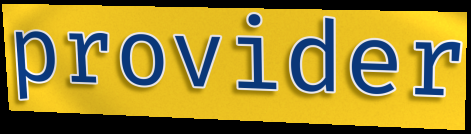
provider